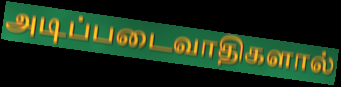
அடிப்படைவாதிகளால்